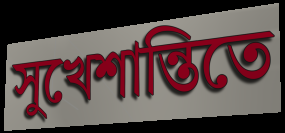
সুখেশান্তিতে